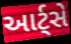
આર્ટ્સે